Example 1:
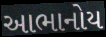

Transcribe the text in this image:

આભાનોય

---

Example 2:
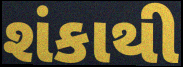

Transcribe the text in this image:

શંકાથી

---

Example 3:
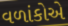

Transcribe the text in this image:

વળાંકોએ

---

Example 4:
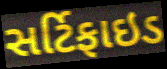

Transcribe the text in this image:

સર્ટિફાઇડ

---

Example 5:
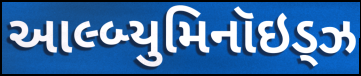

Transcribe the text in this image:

આલ્બ્યુમિનૉઇડ્ઝ